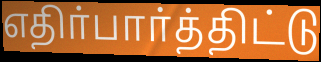
எதிர்பார்த்திட்டு